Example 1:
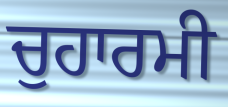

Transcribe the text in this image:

ਚੁਹਾਰਮੀ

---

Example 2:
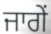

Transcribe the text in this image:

ਜਾਗੇਂ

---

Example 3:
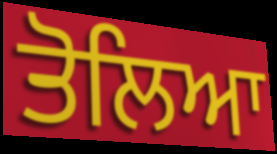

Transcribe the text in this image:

ਤੋਲਿਆ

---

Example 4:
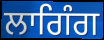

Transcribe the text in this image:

ਲਾਗਿੰਗ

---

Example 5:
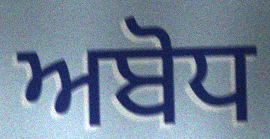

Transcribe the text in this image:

ਅਬੋਧ